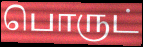
பொருட்